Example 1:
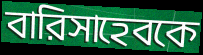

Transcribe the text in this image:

বারিসাহেবকে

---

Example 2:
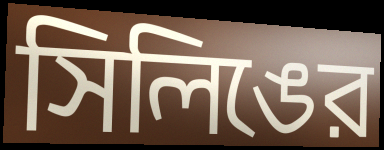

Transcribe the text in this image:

সিলিঙের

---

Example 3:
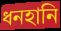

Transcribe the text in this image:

ধনহানি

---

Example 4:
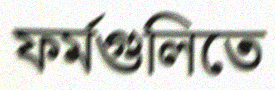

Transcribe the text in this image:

ফর্মগুলিতে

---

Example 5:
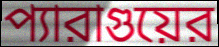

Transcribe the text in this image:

প্যারাগুয়ের